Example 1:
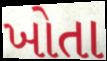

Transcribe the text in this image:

ખોતા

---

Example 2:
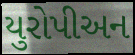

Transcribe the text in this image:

યુરોપીઅન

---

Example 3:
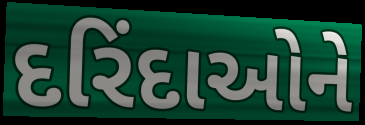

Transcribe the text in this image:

દરિંદાઓને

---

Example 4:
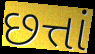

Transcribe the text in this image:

છત્તાં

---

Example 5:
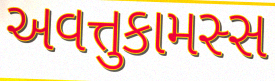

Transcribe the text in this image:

અવત્તુકામસ્સ